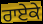
ਰਾਏਕੇ